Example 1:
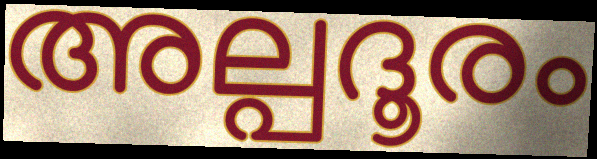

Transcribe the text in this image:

അല്പദൂരം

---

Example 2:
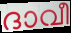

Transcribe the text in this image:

ദാവീ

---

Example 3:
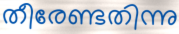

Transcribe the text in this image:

തീരേണ്ടതിന്നു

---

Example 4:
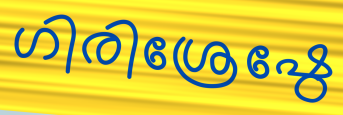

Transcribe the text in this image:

ഗിരിശ്രേഷ്ഠേ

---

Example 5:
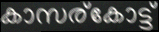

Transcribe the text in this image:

കാസര്കോട്ട്